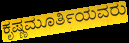
ಕೃಷ್ಣಮೂರ್ತಿಯವರು